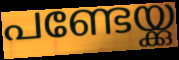
പണ്ടേയ്ക്കു